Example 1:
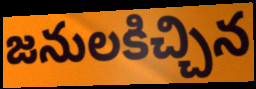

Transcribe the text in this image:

జనులకిచ్చిన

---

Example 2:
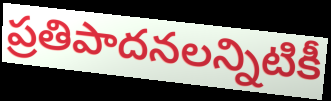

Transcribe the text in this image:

ప్రతిపాదనలన్నిటికీ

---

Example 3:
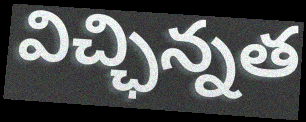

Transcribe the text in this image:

విచ్ఛిన్నత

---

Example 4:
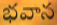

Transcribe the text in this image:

భవాన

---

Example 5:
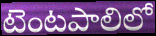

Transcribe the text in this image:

టెంటపాలిలో